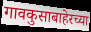
गावकुसाबाहेरच्या